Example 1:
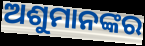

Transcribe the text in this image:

ଅଶୁମାନଙ୍କର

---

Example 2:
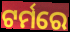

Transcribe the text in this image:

ଟର୍ମରେ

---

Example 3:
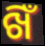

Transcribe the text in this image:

ଖିଁ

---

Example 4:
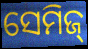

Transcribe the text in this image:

ସେମିଜ୍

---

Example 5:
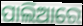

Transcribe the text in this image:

ପାଲିଆରେ